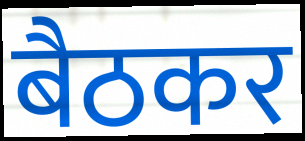
बैठकर